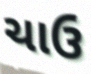
ચાઉ